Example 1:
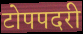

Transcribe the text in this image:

टोपपदरी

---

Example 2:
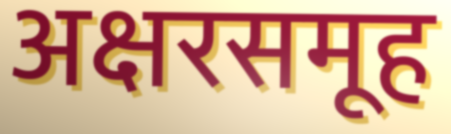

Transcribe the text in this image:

अक्षरसमूह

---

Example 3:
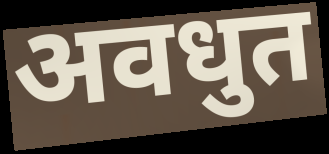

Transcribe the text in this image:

अवधुत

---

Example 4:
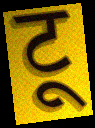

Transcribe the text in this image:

टू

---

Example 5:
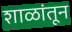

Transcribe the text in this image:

शाळांतून